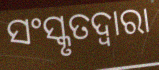
ସଂସ୍କୃତଦ୍ୱାରା